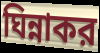
ঘিন্নাকর